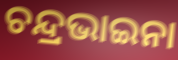
ଚନ୍ଦ୍ରଭାଇନା